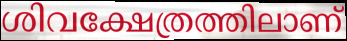
ശിവക്ഷേത്രത്തിലാണ്